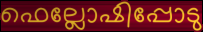
ഫെല്ലോഷിപ്പോടു